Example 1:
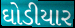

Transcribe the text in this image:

ઘોડીયાર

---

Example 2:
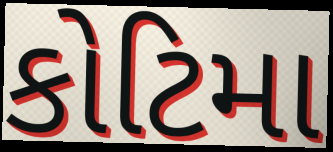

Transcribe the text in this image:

કોટિમા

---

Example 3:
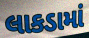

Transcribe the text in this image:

લાકડામાં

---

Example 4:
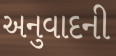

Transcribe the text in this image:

અનુવાદની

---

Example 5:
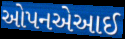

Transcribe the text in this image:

ઓપનએઆઈ